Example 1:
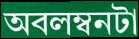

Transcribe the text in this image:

অবলম্বনটা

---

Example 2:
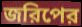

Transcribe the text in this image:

জরিপের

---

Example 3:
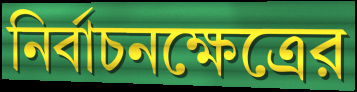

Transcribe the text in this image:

নির্বাচনক্ষেত্রের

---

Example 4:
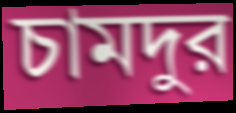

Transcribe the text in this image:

চামদুর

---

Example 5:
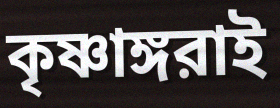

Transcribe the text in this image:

কৃষ্ণাঙ্গরাই